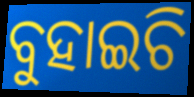
ବୁହାଇଚି